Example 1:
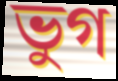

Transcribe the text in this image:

ভুগ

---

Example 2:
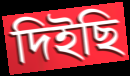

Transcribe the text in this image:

দিইছি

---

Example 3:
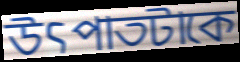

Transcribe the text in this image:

উৎপাতটাকে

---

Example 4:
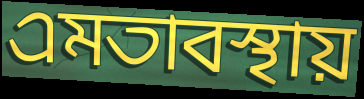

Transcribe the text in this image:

এমতাবস্থায়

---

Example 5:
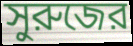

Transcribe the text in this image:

সুরুজের